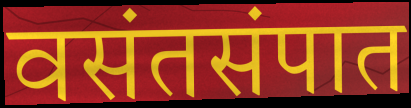
वसंतसंपात